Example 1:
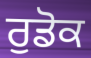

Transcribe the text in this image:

ਰੁਡੋਕ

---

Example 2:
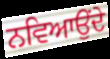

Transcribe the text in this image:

ਨਵਿਆਉਂਦੇ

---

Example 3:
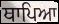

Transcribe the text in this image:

ਥਾਪਿਆ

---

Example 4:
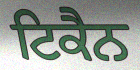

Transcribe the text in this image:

ਟਿਕੈਨ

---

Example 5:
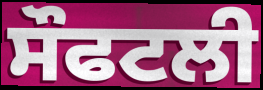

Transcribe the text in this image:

ਸੌਫਟਲੀ